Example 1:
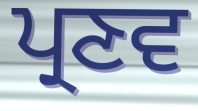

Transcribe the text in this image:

ਪ੍ਰਣਵ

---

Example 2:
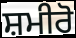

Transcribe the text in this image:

ਸ਼ਮੀਰੋ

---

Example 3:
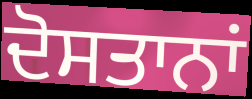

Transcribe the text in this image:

ਦੋਸਤਾਨਾਂ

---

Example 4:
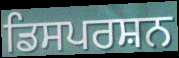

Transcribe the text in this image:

ਡਿਸਪਰਸ਼ਨ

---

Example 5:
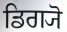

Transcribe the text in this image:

ਡਿਗ੍ਯੋ